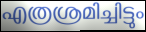
എത്രശ്രമിച്ചിട്ടും